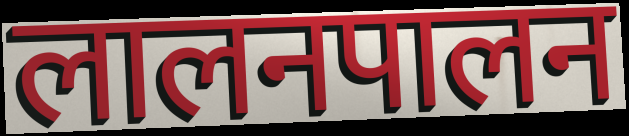
लालनपालन